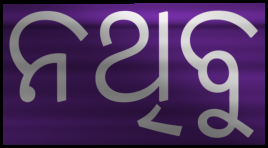
ନଥିବୁ